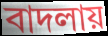
বাদলায়